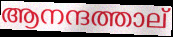
ആനന്ദത്താല്